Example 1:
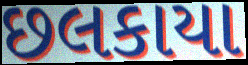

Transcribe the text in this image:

છલકાયા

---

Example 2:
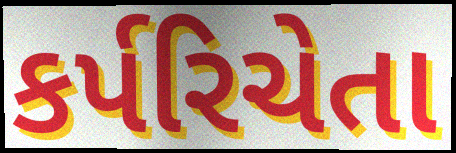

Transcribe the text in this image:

કર્પરિચેતા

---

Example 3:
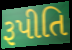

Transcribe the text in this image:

રૂપીતિ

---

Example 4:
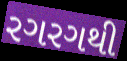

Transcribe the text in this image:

રગરગથી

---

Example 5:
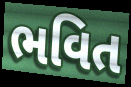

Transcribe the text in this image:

ભવિત